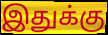
இதுக்கு